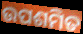
ଉପଶମିତ